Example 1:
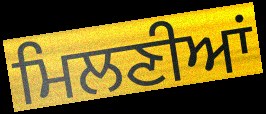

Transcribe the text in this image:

ਮਿਲਣੀਆਂ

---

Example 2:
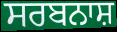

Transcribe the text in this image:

ਸਰਬਨਾਸ਼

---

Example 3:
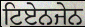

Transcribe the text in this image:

ਟਿਏਨਜੇਨ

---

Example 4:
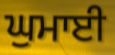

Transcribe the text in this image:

ਘੁਮਾਈ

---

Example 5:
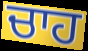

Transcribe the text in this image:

ਚਾਹ